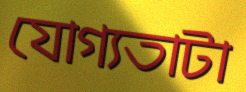
যোগ্যতাটা